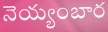
నెయ్యంబార